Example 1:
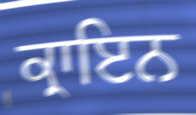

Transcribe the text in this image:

ਕ੍ਰਾਇਨ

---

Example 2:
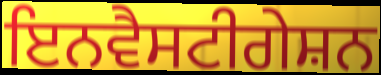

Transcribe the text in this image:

ਇਨਵੈਸਟੀਗੇਸ਼ਨ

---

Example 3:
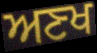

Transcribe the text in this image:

ਅਣਖ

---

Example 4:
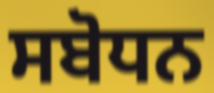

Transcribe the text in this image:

ਸਬੋਧਨ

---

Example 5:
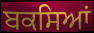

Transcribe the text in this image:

ਬਕਸਿਆਂ